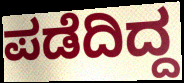
ಪಡೆದಿದ್ದ